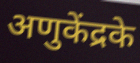
अणुकेंद्रके